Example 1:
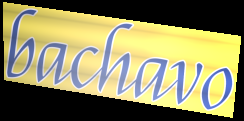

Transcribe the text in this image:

bachavo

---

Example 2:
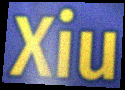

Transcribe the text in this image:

Xiu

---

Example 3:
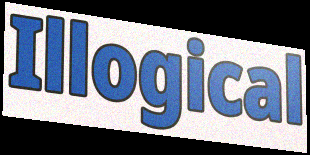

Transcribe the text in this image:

Illogical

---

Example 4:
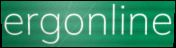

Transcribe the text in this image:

ergonline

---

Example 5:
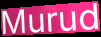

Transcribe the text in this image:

Murud